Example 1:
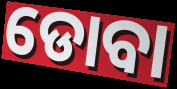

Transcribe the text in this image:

ଡୋବା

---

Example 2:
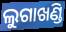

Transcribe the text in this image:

ଲୁଗାଖଣ୍ଡି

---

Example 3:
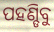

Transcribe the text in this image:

ପହଣ୍ଡିବୁ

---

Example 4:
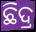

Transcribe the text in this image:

ଛିଦ୍ର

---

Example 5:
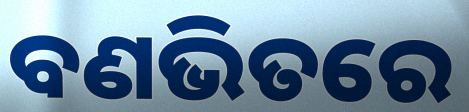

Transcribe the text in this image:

ବଣଭିତରେ